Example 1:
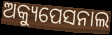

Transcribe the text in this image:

ଅକ୍ୟୁପେସନାଲ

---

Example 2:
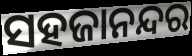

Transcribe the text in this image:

ସହଜାନନ୍ଦର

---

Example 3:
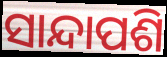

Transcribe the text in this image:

ସାନ୍ଦାପଶି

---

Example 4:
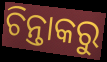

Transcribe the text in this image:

ଚିନ୍ତାକରୁ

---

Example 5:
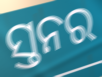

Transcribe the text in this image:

ସ୍ତନର